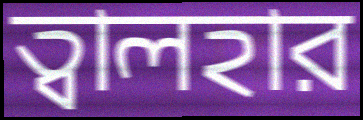
ত্বালহার